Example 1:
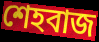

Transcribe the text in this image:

শেহবাজ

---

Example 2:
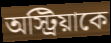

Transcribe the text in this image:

অস্ট্রিয়াকে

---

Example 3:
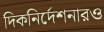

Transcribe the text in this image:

দিকনির্দেশনারও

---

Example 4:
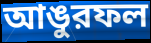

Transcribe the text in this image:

আঙুরফল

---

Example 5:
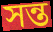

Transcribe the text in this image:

সন্ত